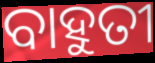
ବାହୁତୀ